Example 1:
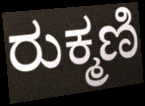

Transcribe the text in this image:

ರುಕ್ಮಣಿ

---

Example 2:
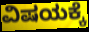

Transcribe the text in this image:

ವಿಷಯಕ್ಕೆ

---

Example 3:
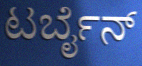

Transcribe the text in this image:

ಟರ್ಬೈನ್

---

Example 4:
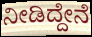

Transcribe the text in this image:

ನೀಡಿದ್ದೇನೆ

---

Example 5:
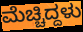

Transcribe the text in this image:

ಮೆಚ್ಚಿದ್ದಳು